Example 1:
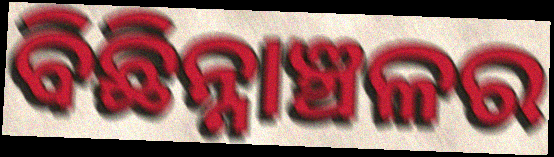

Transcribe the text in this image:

ବିଛିନ୍ନାଞ୍ଚଳର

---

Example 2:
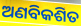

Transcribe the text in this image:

ଅଣବିକଶିତ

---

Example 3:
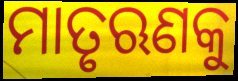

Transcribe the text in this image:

ମାତୃଋଣକୁ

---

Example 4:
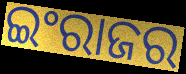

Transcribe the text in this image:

ଇଂରାଜର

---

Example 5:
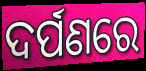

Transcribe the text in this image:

ଦର୍ପଣରେ